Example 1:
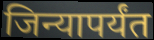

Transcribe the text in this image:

जिन्यापर्यंत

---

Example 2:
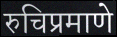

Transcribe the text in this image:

रुचिप्रमाणे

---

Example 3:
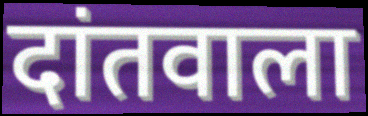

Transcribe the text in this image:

दांतवाला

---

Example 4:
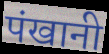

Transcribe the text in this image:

पंखानी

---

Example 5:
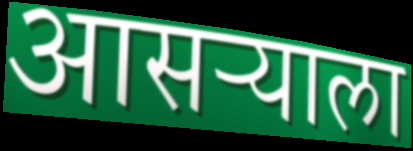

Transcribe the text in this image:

आसऱ्याला